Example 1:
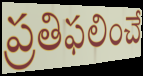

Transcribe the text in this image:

ప్రతిఫలించే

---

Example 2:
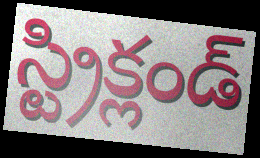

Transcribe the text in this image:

స్ట్రిక్లండ్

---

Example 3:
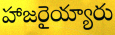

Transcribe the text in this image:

హాజరైయ్యారు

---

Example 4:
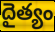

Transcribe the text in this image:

దైత్యం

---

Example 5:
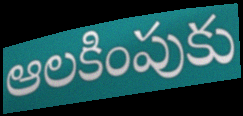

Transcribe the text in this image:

ఆలకింపుకు